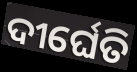
ଦୀର୍ଘେତି